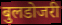
बुलडोजरी